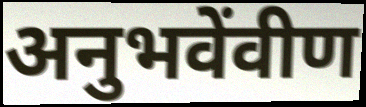
अनुभवेंवीण